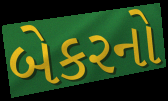
બેકરનો